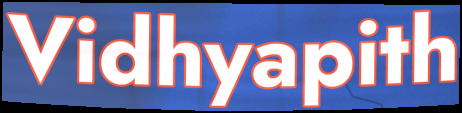
Vidhyapith